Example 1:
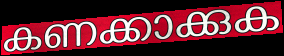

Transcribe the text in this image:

കണക്കാക്കുക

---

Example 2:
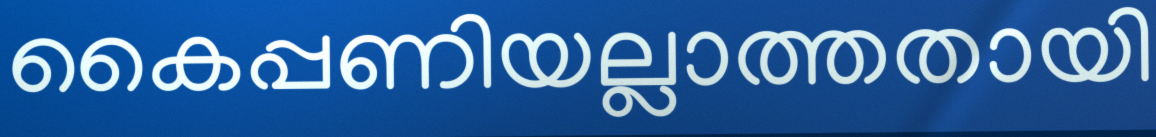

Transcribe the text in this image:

കൈപ്പണിയല്ലാത്തതായി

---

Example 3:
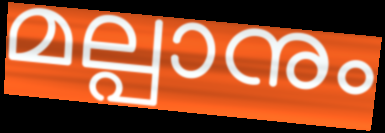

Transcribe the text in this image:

മല്പാനും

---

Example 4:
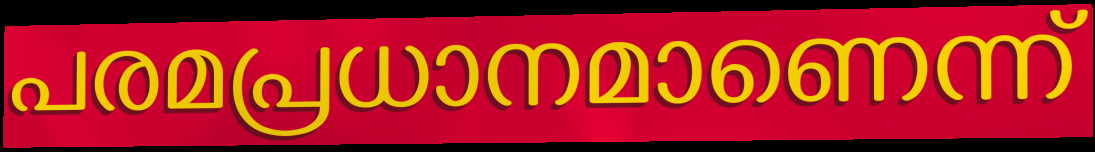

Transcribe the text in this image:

പരമപ്രധാനമാണെന്ന്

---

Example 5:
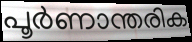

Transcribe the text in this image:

പൂർണാന്തരിക